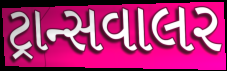
ટ્રાન્સવાલર